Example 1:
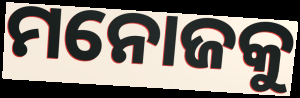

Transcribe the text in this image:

ମନୋଜକୁ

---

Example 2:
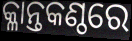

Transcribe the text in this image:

କ୍ଳାନ୍ତକଣ୍ଠରେ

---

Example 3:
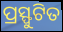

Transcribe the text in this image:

ପ୍ରସ୍ଫୁଟିତ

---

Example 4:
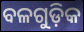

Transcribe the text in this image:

ବଳଗୁଡ଼ିକ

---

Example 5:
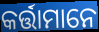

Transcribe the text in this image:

କର୍ତ୍ତାମାନେ